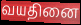
வயதினை